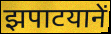
झपाटयानें